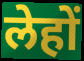
लेहों